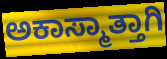
ಅಕಾಸ್ಮಾತ್ತಾಗಿ